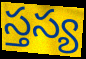
స్తస్య